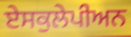
ਏਸਕੁਲੇਪੀਅਨ